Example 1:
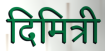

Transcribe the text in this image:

दिमित्री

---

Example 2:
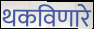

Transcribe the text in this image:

थकविणारे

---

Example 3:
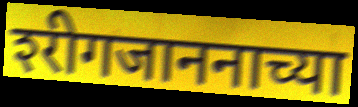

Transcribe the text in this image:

श्रीगजाननाच्या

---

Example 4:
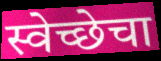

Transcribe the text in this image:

स्वेच्छेचा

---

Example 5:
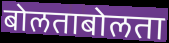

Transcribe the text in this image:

बोलताबोलता